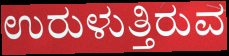
ಉರುಳುತ್ತಿರುವ